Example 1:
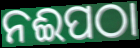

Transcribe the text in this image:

ନଈପଠା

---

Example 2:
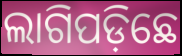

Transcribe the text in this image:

ଲାଗିପଡ଼ିଛେ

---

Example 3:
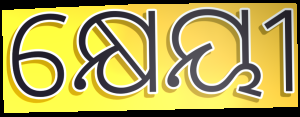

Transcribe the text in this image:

କ୍ଷେୟୀ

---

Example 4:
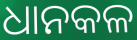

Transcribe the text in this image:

ଧାନକଳ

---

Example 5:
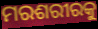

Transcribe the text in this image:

ମରଶରୀରକୁ